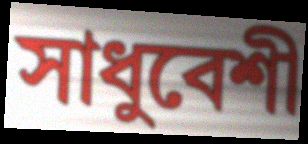
সাধুবেশী